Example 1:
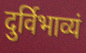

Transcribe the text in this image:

दुर्विभाव्यं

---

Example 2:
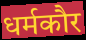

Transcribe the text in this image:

धर्मकौर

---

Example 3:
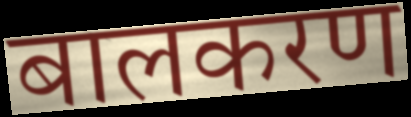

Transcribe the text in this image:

बालकरण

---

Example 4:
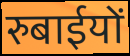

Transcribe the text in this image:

रुबाईयों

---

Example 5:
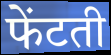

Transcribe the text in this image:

फेंटती